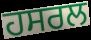
ਹਸਰਲ